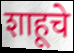
शाहूचे